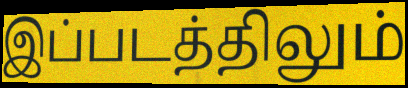
இப்படத்திலும்